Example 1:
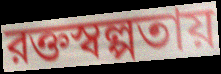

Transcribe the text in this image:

রক্তস্বল্পতায়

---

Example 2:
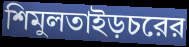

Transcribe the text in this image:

শিমুলতাইড়চরের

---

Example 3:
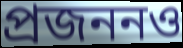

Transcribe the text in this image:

প্রজননও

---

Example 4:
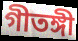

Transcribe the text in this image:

গীতঙ্গী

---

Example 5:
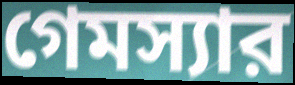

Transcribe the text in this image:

গেমস্যার